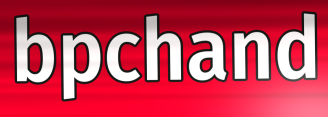
bpchand